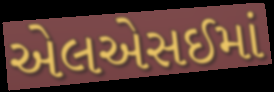
એલએસઈમાં